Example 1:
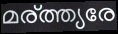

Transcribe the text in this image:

മര്ത്ത്യരേ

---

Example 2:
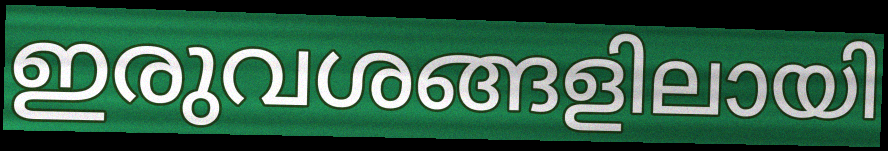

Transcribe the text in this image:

ഇരുവശങ്ങളിലായി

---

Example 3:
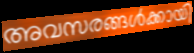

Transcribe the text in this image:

അവസരങ്ങൾക്കായി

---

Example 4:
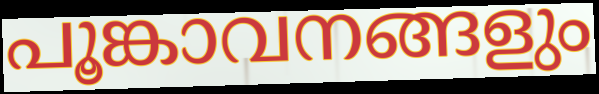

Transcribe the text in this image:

പൂങ്കാവനങ്ങളും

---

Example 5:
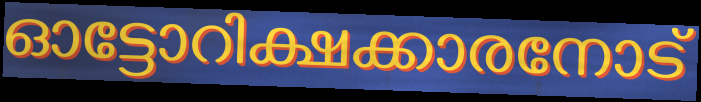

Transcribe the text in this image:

ഓട്ടോറിക്ഷക്കാരനോട്